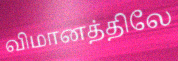
விமானத்திலே